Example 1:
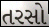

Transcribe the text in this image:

તરસો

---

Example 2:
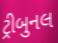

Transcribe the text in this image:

ટ્રીબુનલ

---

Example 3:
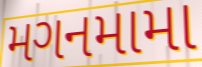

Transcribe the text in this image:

મગનમામા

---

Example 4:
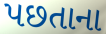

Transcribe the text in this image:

પછતાના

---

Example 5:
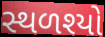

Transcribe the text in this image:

સ્થળશ્યો